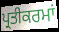
ਪ੍ਰਤੀਕਰਮਾਂ